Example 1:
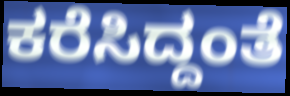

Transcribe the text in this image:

ಕರೆಸಿದ್ದಂತೆ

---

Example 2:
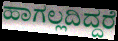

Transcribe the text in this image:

ಹಾಗಲ್ಲದಿದ್ದರೆ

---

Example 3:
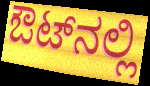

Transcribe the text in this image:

ಔಟ್‌ನಲ್ಲಿ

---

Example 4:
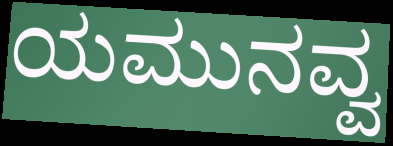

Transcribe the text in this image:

ಯಮುನವ್ವ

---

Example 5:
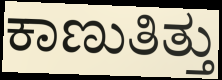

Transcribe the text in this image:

ಕಾಣುತಿತ್ತು